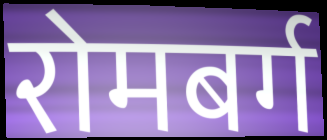
रोमबर्ग